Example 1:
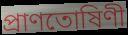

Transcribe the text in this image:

প্ৰাণতোষিণী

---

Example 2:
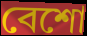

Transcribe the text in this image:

বেশো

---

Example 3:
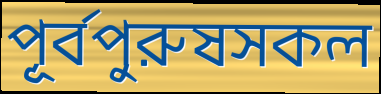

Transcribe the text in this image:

পূৰ্বপুৰুষসকল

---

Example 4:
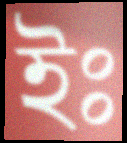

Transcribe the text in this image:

ইঃ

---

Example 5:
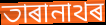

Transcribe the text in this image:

তাৰানাথৰ